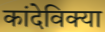
कांदेविक्या